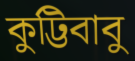
কুট্টিবাবু